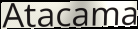
Atacama